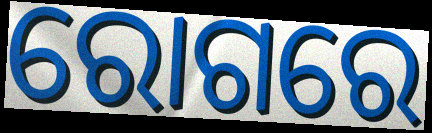
ରୋଗରେ